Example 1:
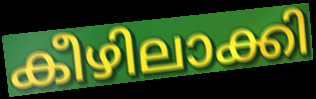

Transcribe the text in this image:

കീഴിലാക്കി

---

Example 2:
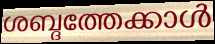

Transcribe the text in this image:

ശബ്ദത്തേക്കാൾ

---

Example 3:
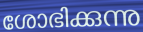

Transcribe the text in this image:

ശോഭിക്കുന്നു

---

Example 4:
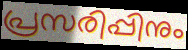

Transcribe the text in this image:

പ്രസരിപ്പിനും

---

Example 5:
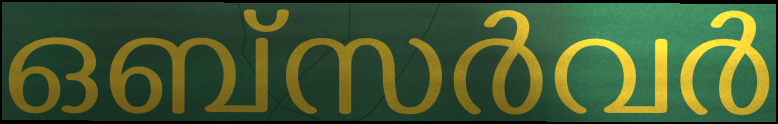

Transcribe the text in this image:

ഒബ്സർവർ